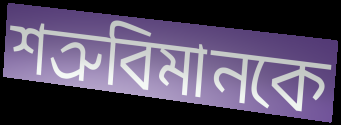
শত্রুবিমানকে